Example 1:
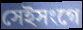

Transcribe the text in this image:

সেইসংগে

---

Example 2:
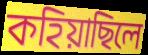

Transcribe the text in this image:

কহিয়াছিলে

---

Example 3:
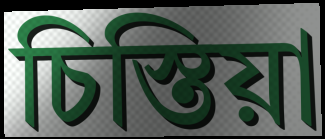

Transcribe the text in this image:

চিস্তিয়া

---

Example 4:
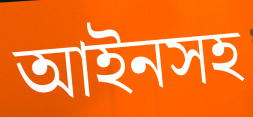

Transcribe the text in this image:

আইনসহ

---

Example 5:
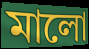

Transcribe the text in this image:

মালো